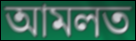
আমলত